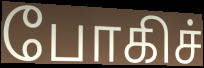
போகிச்